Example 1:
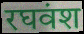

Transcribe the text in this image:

रघवंश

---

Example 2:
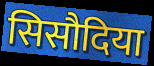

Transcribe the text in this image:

सिसौदिया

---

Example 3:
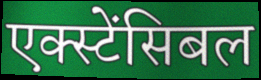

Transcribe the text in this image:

एक्स्टेंसिबल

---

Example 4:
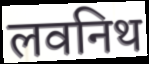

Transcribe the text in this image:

लवनिथ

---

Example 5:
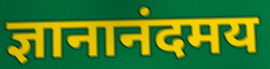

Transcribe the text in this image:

ज्ञानानंदमय